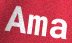
Ama